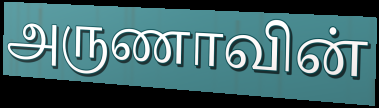
அருணாவின்